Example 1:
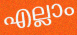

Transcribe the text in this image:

എല്ലാം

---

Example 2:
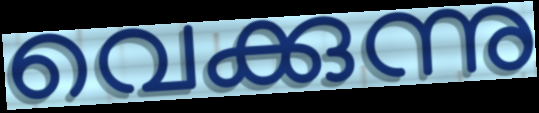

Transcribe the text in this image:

വെക്കുന്നു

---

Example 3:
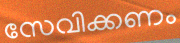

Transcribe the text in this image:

സേവിക്കണം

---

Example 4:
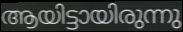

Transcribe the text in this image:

ആയിട്ടായിരുന്നു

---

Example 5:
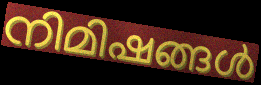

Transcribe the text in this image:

നിമിഷങ്ങൾ